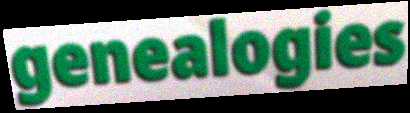
genealogies